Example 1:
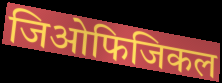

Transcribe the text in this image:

जिओफिजिकल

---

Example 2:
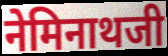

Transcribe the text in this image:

नेमिनाथजी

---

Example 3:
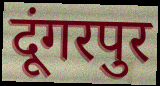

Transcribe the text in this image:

दूंगरपुर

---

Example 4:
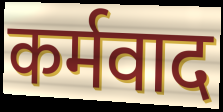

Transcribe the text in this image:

कर्मवाद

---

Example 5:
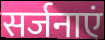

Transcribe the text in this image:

सर्जनाएं